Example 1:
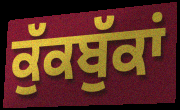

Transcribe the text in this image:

ਕੁੱਕਬੁੱਕਾਂ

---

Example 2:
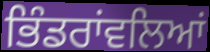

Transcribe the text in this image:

ਭਿੰਡਰਾਂਵਲਿਆਂ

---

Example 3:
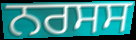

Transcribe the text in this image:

ਨਰਸਸ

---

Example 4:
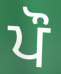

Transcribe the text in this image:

ਪੌ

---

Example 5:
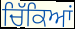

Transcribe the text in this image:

ਚਿੱਕਿਆਂ